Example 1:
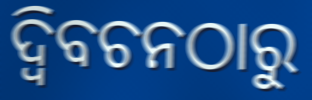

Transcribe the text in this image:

ଦ୍ବିବଚନଠାରୁ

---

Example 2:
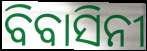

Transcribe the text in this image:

ବିବାସିନୀ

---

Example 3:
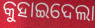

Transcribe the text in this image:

କୁହାଇଦେଲା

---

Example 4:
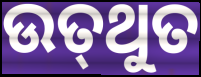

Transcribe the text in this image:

ଉତ୍‌ଥୁତ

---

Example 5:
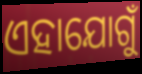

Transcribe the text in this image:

ଏହାଯୋଗୁଁ